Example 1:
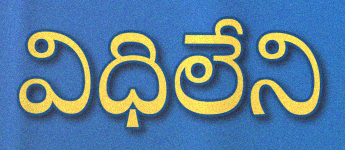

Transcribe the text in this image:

విధిలేని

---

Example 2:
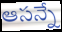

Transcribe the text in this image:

ఆసన్నే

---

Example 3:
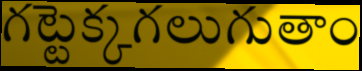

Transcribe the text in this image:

గట్టెక్కగలుగుతాం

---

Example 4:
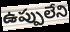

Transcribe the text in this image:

ఉప్పులేని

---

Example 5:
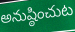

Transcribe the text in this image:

అనుష్ఠించుట